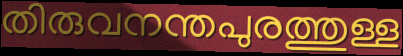
തിരുവനന്തപുരത്തുള്ള